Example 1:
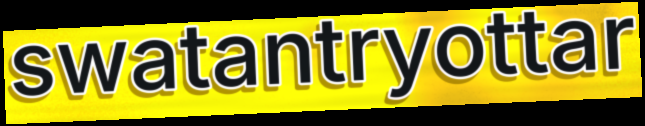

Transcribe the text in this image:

swatantryottar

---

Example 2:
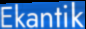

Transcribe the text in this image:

Ekantik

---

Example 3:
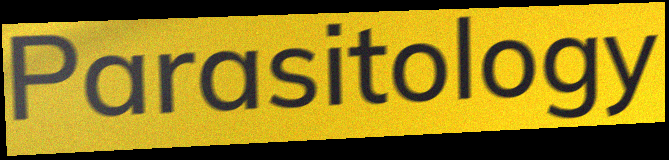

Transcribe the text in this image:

Parasitology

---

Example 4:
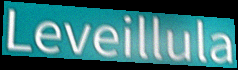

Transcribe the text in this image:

Leveillula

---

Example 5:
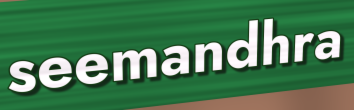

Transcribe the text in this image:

seemandhra